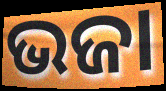
ଭଜା